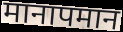
मानापमान